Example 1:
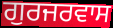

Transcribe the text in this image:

ਗੁਰਜਰਵਾਸ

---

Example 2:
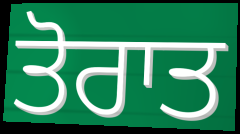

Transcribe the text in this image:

ਤੋਰਾਤ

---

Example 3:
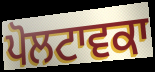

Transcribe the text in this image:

ਪੋਲਟਾਵਕਾ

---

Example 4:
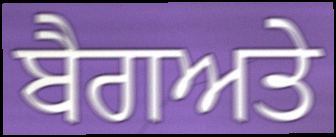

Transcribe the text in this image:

ਬੈਗਅਤੇ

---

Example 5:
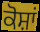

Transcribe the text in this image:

ਕੋਸ਼ਾਂ